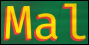
Mal